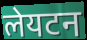
लेयटन